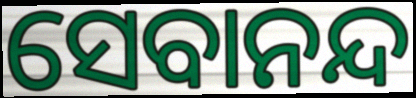
ସେବାନନ୍ଦ